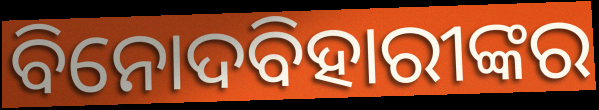
ବିନୋଦବିହାରୀଙ୍କର